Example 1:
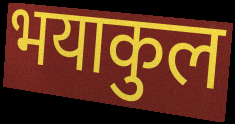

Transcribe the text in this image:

भयाकुल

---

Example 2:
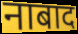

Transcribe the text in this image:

नाबाद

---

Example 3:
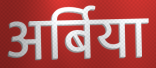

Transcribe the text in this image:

अर्बिया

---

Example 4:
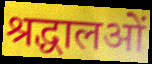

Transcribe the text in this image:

श्रद्धालओं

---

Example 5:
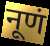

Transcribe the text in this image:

नूणं